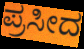
ಪ್ರಸೀದ